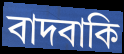
বাদবাকি